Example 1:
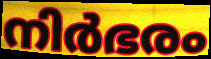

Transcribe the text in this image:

നിർഭരം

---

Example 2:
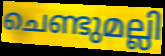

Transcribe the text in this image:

ചെണ്ടുമല്ലി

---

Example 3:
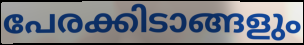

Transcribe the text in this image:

പേരക്കിടാങ്ങളും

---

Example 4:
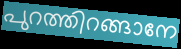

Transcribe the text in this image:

പുറത്തിറങ്ങാനേ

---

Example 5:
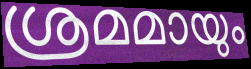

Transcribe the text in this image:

ശ്രമമായും